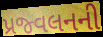
પ્રજ્વલનની